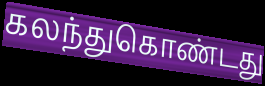
கலந்துகொண்டது